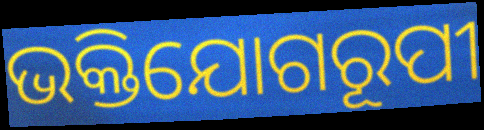
ଭକ୍ତିଯୋଗରୂପୀ